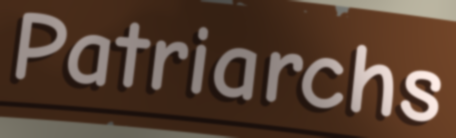
Patriarchs